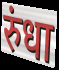
रुंधा